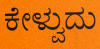
ಕೇಳ್ವುದು